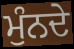
ਮੁੰਨਦੇ